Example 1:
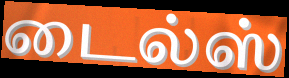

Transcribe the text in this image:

டைல்ஸ்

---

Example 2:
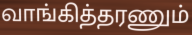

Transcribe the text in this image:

வாங்கித்தரணும்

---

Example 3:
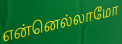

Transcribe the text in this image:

என்னெல்லாமோ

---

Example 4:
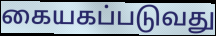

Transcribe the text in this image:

கையகப்படுவது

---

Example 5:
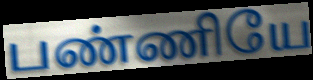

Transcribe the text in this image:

பண்ணியே